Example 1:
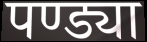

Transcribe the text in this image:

पण्ड्या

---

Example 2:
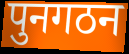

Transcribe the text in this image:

पुनगठन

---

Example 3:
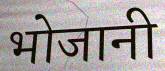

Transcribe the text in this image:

भोजानी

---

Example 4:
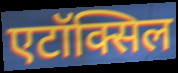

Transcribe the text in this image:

एटॉक्सिल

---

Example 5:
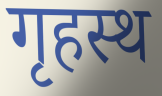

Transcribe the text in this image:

गृहस्थ